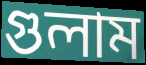
গুলাম